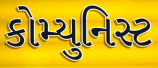
કોમ્યુનિસ્ટ